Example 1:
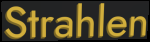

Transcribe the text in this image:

Strahlen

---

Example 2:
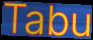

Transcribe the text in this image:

Tabu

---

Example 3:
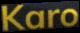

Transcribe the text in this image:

Karo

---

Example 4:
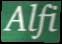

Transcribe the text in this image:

Alfi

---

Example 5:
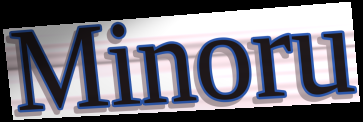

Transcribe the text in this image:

Minoru